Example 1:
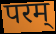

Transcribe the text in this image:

परम्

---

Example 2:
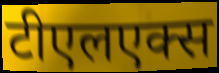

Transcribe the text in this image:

टीएलएक्स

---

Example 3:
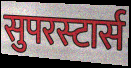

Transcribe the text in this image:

सुपरस्‍टार्स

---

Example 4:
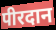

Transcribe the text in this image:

पीरदान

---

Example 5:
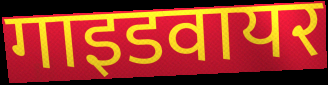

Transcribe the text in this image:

गाइडवायर